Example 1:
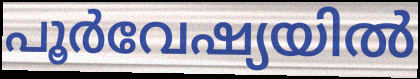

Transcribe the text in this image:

പൂർവേഷ്യയിൽ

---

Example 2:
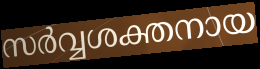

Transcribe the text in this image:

സർവ്വശക്തനായ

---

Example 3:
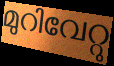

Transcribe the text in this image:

മുറിവേറ്റു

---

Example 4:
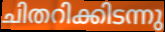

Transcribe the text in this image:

ചിതറിക്കിടന്നു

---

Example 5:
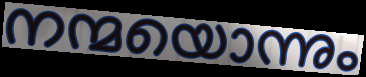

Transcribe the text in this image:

നന്മയൊന്നും